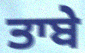
ਤਾਬੇ